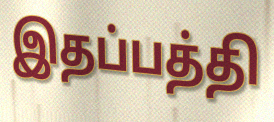
இதப்பத்தி